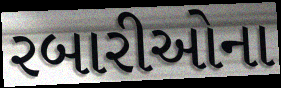
રબારીઓના